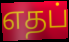
எதப்